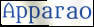
Apparao